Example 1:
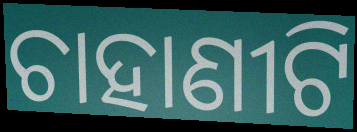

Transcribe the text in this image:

ଚାହାଣୀଟି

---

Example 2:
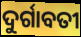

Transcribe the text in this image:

ଦୁର୍ଗାବତୀ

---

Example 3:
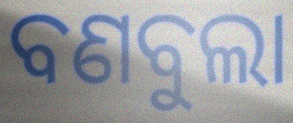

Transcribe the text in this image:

ବଣବୁଲା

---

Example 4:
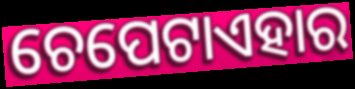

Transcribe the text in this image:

ଚେପେଟାଏହାର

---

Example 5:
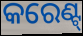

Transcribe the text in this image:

କରେଣ୍ଟ୍